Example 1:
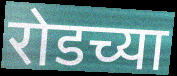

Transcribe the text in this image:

रोडच्या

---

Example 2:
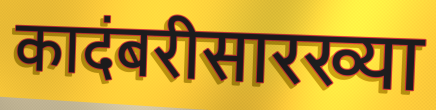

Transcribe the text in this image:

कादंबरीसारख्या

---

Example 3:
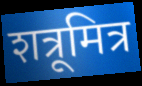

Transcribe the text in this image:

शत्रूमित्र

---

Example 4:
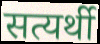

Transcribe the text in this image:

सत्यर्थी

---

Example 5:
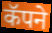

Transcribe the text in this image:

कॅपने